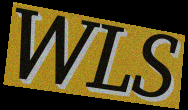
WLS